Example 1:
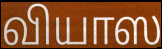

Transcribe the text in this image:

வியாஸ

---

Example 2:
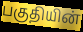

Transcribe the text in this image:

பகுதியின்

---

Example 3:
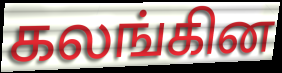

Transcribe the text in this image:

கலங்கின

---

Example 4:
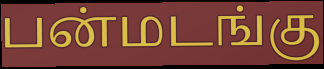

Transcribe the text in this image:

பன்மடங்கு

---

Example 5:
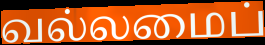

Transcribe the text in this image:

வல்லமைப்